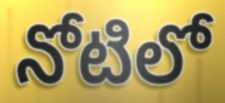
నోటిలో